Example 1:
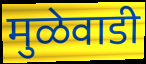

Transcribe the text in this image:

मुळेवाडी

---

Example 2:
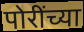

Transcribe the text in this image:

पोरींच्या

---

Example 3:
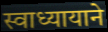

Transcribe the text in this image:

स्वाध्यायाने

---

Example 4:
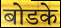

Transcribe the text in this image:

बोडके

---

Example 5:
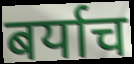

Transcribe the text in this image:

बर्याच